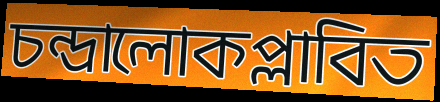
চন্দ্রালোকপ্লাবিত